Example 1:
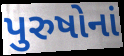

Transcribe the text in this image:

પુરુષોનાં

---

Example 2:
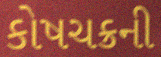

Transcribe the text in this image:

કોષચક્રની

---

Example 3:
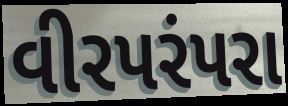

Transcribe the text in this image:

વીરપરંપરા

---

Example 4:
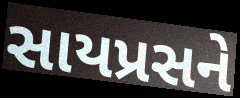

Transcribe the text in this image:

સાયપ્રસને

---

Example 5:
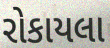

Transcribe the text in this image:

રોકાયલા